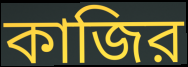
কাজির